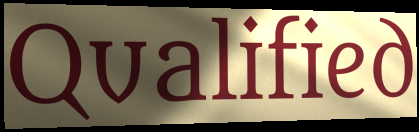
Qualified